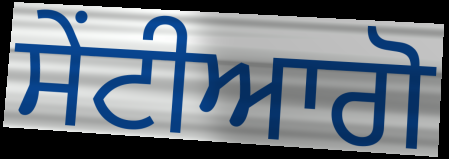
ਸੇਂਟੀਆਗੋ